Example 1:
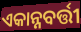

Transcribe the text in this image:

ଏକାନ୍ନବର୍ତ୍ତୀ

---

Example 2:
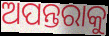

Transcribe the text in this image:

ଅପନ୍ତରାକୁ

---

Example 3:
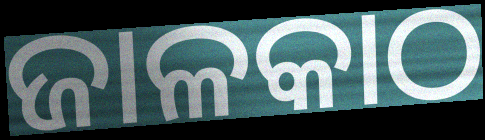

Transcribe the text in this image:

ଜାଳକାଠ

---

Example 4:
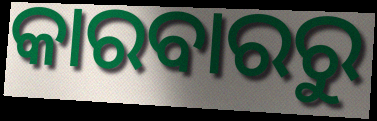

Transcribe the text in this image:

କାରବାରରୁ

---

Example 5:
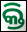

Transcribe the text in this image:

କ୍ତି